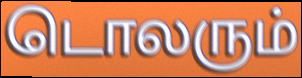
டொலரும்